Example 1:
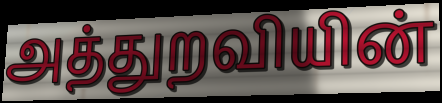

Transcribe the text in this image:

அத்துறவியின்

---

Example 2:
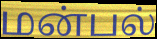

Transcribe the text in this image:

மன்பல்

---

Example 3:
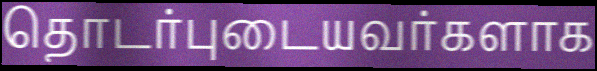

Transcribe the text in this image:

தொடர்புடையவர்களாக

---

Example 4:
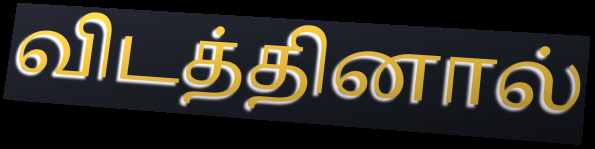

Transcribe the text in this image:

விடத்தினால்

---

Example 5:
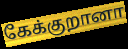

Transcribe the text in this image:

கேக்குறானா